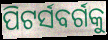
ପିଟର୍ସବର୍ଗକୁ